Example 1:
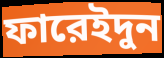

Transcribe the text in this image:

ফারেইদুন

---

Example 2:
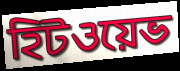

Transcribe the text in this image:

হিটওয়েভ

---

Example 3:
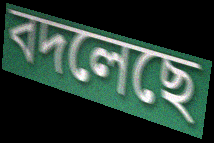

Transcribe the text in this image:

বদলেছে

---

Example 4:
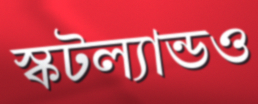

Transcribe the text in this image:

স্কটল্যান্ডও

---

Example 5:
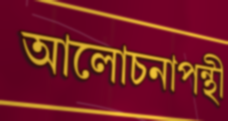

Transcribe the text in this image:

আলোচনাপন্থী